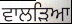
ਵਾਲੜਿਆ